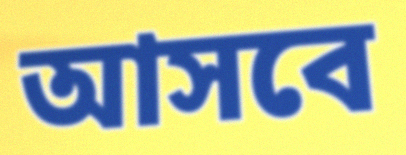
আসবে